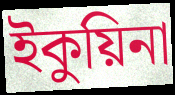
ইকুয়িনা